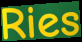
Ries